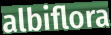
albiflora